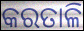
କରତାଳି